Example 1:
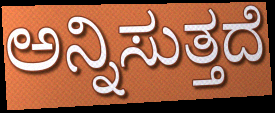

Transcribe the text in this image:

ಅನ್ನಿಸುತ್ತದೆ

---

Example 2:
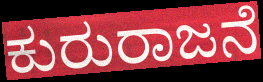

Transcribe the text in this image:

ಕುರುರಾಜನೆ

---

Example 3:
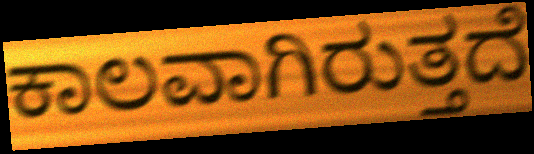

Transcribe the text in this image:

ಕಾಲವಾಗಿರುತ್ತದೆ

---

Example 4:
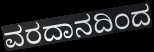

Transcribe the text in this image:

ವರದಾನದಿಂದ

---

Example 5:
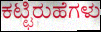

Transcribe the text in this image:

ಕಟ್ಟಿರುಹೆಗಳು